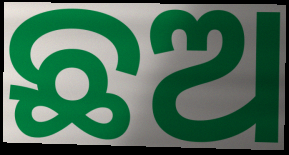
ଛଅ